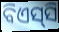
ବିଏସ୍‌ସି